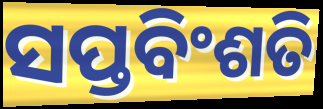
ସପ୍ତବିଂଶତି